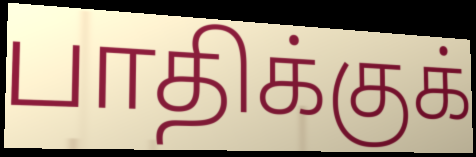
பாதிக்குக்